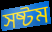
সষ্টম